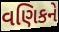
વણિકને